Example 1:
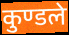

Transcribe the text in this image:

कुण्डले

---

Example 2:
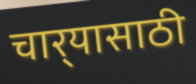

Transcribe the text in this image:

चार्‍यासाठी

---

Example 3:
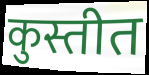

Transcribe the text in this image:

कुस्तीत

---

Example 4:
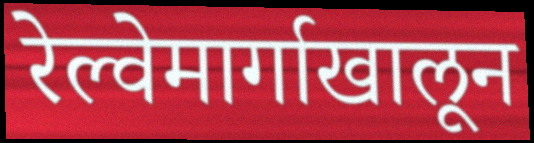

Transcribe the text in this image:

रेल्वेमार्गाखालून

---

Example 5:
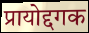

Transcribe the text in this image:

प्रायोद्दगक